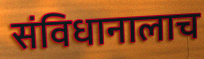
संविधानालाच